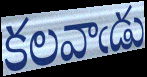
కలవాఁడు